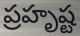
ప్రహృష్ట